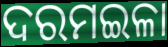
ଦରମଇଳା